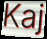
Kaj